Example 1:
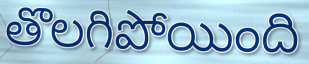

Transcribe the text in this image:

తొలగిపోయింది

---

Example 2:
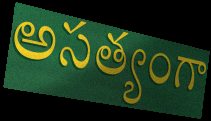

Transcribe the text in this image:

అసత్యంగా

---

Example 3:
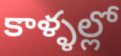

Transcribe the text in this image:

కాళ్ళల్లో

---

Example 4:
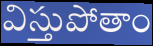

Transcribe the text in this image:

విస్తుపోతాం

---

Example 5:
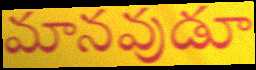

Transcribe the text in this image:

మానవుడూ